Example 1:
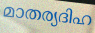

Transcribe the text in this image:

മാതര്യദിഹ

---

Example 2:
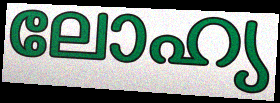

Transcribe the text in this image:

ലോഹ്യ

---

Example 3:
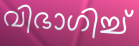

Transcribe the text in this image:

വിഭാഗിച്ച്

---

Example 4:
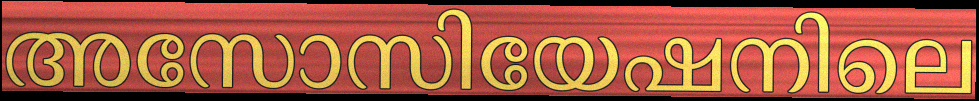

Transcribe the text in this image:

അസോസിയേഷനിലെ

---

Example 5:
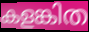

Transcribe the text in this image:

കളങ്കിത